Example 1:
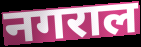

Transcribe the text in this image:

नगराल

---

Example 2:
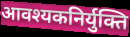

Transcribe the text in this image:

आवश्यकनिर्युक्ति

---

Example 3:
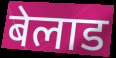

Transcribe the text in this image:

बेलाड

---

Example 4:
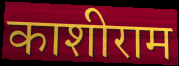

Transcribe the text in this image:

काशीराम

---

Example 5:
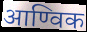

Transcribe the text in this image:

आण्विक